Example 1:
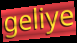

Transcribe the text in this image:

geliye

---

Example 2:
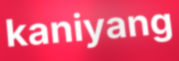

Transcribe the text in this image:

kaniyang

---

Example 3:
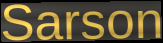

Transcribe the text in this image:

Sarson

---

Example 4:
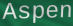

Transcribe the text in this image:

Aspen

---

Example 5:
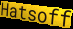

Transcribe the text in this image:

Hatsoff